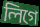
লিগে